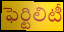
ఫెర్టిలిటీ